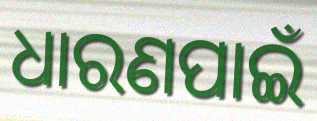
ଧାରଣପାଇଁ